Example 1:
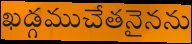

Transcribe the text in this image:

ఖడ్గముచేతనైనను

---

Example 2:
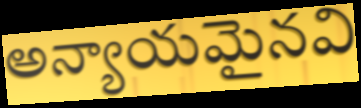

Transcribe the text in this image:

అన్యాయమైనవి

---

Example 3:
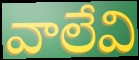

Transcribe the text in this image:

వాలేవి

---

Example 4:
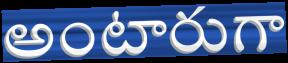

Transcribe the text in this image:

అంటారుగా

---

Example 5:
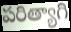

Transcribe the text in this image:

పరిత్యాగి